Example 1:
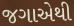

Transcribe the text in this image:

જગાએથી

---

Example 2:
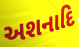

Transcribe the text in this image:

અશનાદિ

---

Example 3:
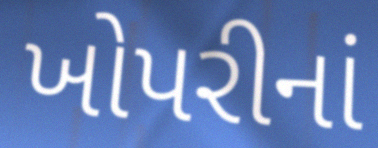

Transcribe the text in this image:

ખોપરીનાં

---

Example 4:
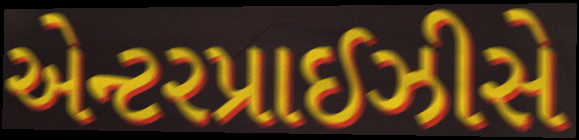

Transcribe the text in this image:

એન્ટરપ્રાઈઝીસે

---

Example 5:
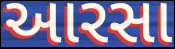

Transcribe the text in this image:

આરસા